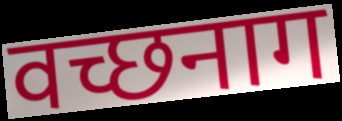
वच्छनाग